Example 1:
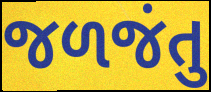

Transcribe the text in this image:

જળજંતુ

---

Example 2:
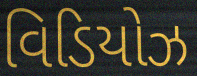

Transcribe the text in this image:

વિડિયોઝ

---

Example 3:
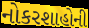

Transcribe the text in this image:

નોકરશાહોની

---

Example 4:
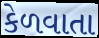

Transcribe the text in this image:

કેળવાતા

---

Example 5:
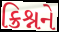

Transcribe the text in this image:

ક્રિશ્નને